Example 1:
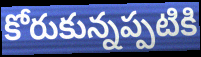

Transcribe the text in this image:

కోరుకున్నప్పటికి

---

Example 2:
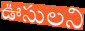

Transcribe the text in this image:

ఊసులని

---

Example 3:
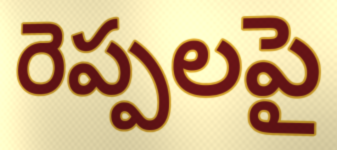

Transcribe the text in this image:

రెప్పలపై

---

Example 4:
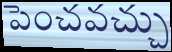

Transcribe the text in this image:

పెంచవచ్చు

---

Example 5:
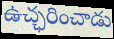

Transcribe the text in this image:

ఉచ్ఛరించాడు